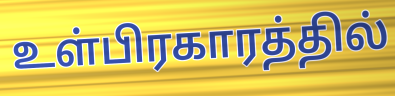
உள்பிரகாரத்தில்